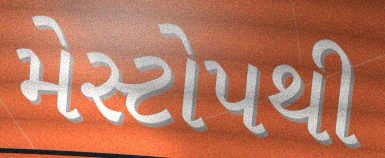
મેસ્ટોપથી